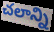
చలాన్ని